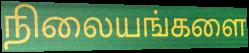
நிலையங்களை